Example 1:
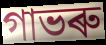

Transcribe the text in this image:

গাভৰু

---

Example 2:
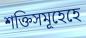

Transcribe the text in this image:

শক্তিসমূহেহে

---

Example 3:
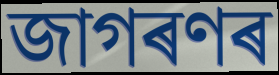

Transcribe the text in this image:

জাগৰণৰ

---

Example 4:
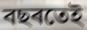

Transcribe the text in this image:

বছৰতেই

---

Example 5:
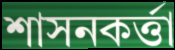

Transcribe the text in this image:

শাসনকৰ্ত্তা